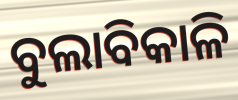
ବୁଲାବିକାଳି